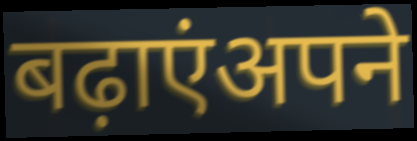
बढ़ाएंअपने